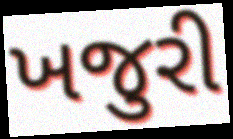
ખજુરી